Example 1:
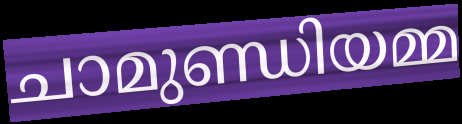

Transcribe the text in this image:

ചാമുണ്ഡിയമ്മ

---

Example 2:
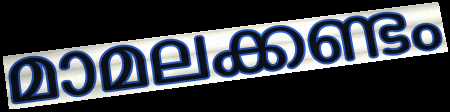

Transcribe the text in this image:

മാമലക്കണ്ടം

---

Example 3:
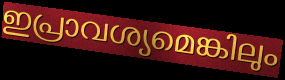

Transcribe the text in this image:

ഇപ്രാവശ്യമെങ്കിലും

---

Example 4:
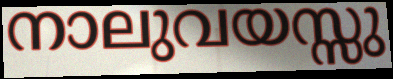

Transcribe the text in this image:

നാലുവയസ്സു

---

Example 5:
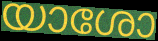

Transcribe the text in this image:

യാശോ